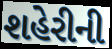
શહેરીની